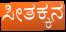
ಸೀತಕ್ಕನ